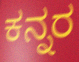
ಕನ್ನರ